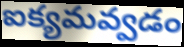
ఐక్యమవ్వడం